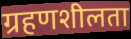
ग्रहणशीलता